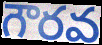
గౌరవ